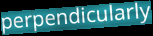
perpendicularly